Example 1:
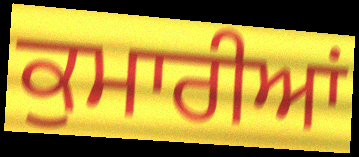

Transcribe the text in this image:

ਕੁਮਾਰੀਆਂ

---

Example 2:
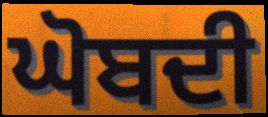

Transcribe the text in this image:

ਘੋਬਦੀ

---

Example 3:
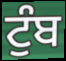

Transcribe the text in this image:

ਟੁੰਬ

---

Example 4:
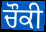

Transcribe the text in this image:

ਚੌਕੀ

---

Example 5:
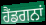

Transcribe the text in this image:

ਹੈਂਡਗਨਾਂ